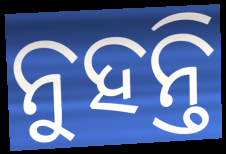
ନୁହନ୍ତି